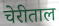
चेरीताल